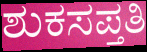
ಶುಕಸಪ್ತತಿ